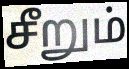
சீறும்